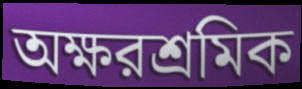
অক্ষরশ্রমিক